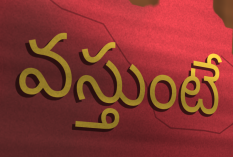
వస్తుంటే